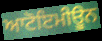
ਆਟੋਇਮੀਊਨ